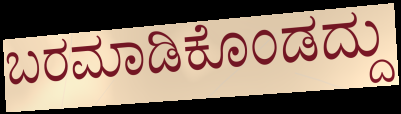
ಬರಮಾಡಿಕೊಂಡದ್ದು